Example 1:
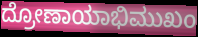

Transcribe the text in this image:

ದ್ರೋಣಾಯಾಭಿಮುಖಂ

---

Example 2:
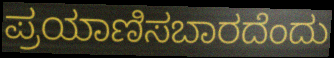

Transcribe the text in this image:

ಪ್ರಯಾಣಿಸಬಾರದೆಂದು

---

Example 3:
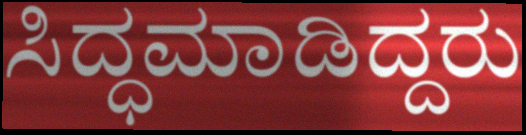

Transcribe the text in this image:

ಸಿದ್ಧಮಾಡಿದ್ದರು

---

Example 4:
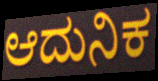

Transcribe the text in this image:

ಆದುನಿಕ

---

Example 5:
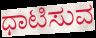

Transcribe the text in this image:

ಧಾಟಿಸುವ